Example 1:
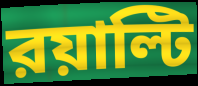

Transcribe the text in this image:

রয়াল্টি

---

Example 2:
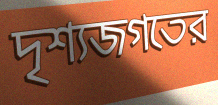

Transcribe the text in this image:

দৃশ্যজগতের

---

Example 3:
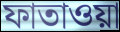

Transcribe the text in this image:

ফাতাওয়া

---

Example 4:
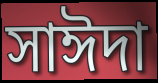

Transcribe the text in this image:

সাঈদা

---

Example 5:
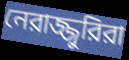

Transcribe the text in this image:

নেরাজ্জুরিরা